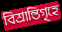
বিশ্রান্তিগৃহে